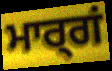
ਮਾਰ੍ਗਂ